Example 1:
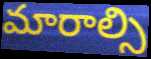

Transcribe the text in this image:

మారాల్సి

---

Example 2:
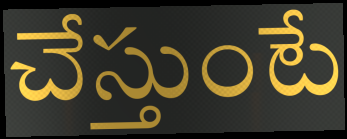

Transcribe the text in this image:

చేస్తుంటే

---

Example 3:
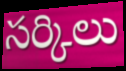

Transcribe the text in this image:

సర్కిలు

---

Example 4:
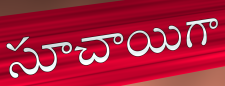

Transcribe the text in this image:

సూచాయిగా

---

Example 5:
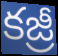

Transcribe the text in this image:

కజ్రీ